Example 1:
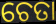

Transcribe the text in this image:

ଚେତା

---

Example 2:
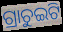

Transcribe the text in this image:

ଗ୍ରାଚୁଇଟି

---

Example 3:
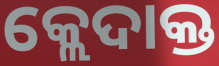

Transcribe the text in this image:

କ୍ଲେଦାକ୍ତ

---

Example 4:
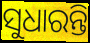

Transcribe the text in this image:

ସୁଧାରନ୍ତି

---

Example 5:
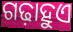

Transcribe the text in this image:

ଗଢ଼ାହୁଏ